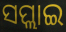
ସପ୍ଲାଇ